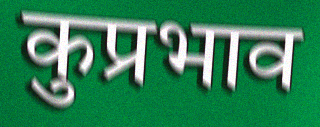
कुप्रभाव